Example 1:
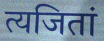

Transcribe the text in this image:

त्यजितां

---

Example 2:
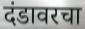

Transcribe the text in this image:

दंडावरचा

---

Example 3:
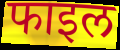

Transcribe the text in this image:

फाइल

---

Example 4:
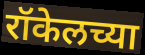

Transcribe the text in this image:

रॉकेलच्या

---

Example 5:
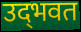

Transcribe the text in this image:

उद्‌भवत